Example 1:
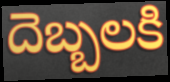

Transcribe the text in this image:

దెబ్బలకి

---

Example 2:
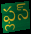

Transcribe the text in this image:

ఫ్లస్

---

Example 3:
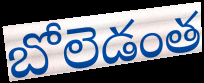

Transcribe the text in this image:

బోలెడంత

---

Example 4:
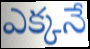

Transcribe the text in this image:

ఎక్కనే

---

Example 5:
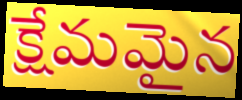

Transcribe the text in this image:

క్షేమమైన